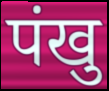
पंखु